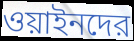
ওয়াইনদের